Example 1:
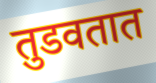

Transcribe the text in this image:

तुडवतात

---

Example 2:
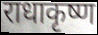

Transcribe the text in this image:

राधाकृष्ण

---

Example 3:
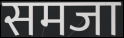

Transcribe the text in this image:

समजा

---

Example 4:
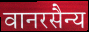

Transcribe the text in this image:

वानरसैन्य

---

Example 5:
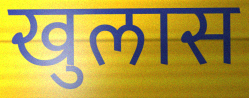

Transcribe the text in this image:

खुलास